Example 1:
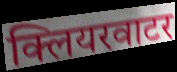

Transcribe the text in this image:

क्लियरवाटर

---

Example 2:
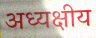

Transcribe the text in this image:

अध्यक्षीय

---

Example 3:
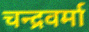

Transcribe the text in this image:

चन्द्रवर्मा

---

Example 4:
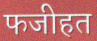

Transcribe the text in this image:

फजीहत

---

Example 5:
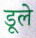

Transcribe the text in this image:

डूले